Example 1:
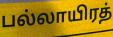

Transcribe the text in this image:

பல்லாயிரத்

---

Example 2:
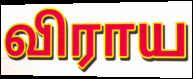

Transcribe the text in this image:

விராய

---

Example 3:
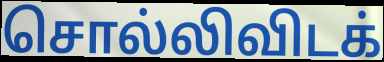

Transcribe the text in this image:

சொல்லிவிடக்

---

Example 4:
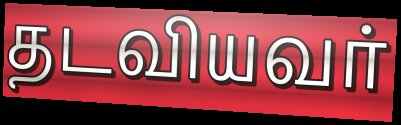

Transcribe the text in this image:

தடவியவர்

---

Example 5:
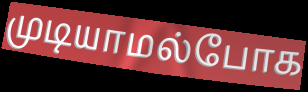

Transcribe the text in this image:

முடியாமல்போக